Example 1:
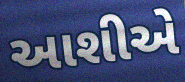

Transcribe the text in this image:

આશીએ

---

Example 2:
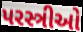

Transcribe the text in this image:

પરસ્ત્રીઓ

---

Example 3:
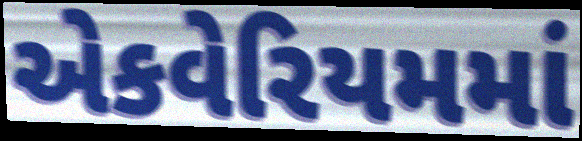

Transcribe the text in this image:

એકવેરિયમમાં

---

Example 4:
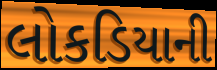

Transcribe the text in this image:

લોકડિયાની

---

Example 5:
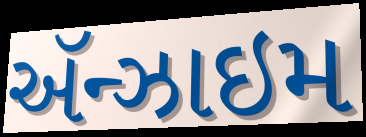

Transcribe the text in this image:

ઍન્ઝાઇમ